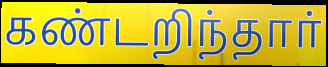
கண்டறிந்தார்